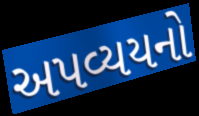
અપવ્યયનો